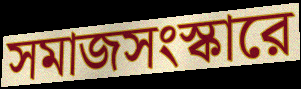
সমাজসংস্কারে